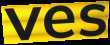
ves